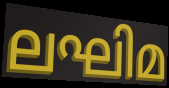
ലഘിമ